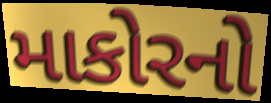
માકોરનો